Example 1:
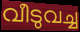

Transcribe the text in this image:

വീടുവച്ച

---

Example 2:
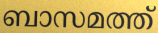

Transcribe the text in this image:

ബാസമത്ത്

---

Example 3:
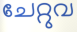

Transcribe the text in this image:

ചേറ്റുവ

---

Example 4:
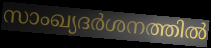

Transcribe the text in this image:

സാംഖ്യദർശനത്തിൽ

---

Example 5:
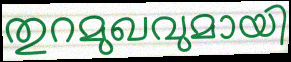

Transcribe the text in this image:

തുറമുഖവുമായി